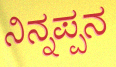
ನಿನ್ನಪ್ಪನ